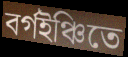
বর্গইঞ্চিতে